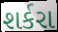
શર્કરા